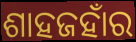
ଶାହଜହାଁର